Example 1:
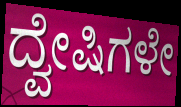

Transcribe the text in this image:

ದ್ವೇಷಿಗಳೇ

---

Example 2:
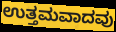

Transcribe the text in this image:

ಉತ್ತಮವಾದವು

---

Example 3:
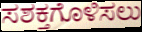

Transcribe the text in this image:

ಸಶಕ್ತಗೊಳಿಸಲು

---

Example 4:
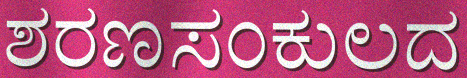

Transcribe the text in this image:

ಶರಣಸಂಕುಲದ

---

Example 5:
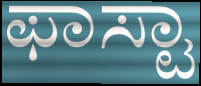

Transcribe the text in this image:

ಫಾಸ್ಟಾ